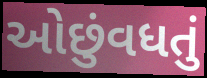
ઓછુંવધતું